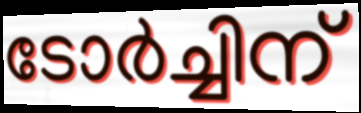
ടോർച്ചിന്